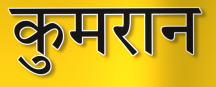
कुमरान